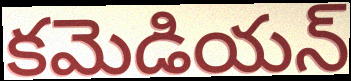
కమెడియన్